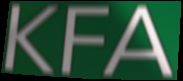
KFA